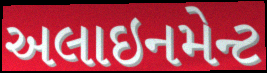
અલાઇનમેન્ટ